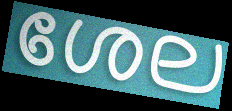
ശേല